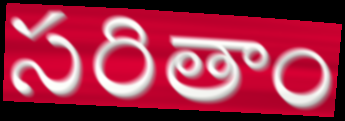
సరితాం